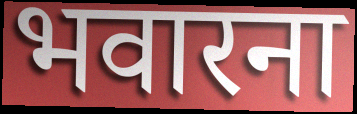
भवारना